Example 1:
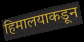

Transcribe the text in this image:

हिमालयाकडून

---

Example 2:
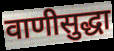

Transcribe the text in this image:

वाणीसुद्धा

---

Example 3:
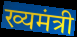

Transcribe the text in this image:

ख्यमंत्री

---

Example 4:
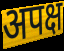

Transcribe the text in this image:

अपक्ष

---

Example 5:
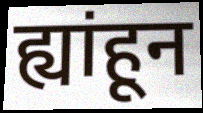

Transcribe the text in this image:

ह्यांहून